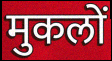
मुकलों